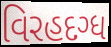
વિરહદગ્ધ